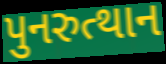
પુનરુત્થાન